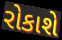
રોકાશે